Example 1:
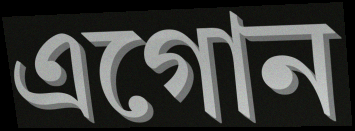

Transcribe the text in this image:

এগোন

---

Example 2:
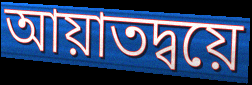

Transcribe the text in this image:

আয়াতদ্বয়ে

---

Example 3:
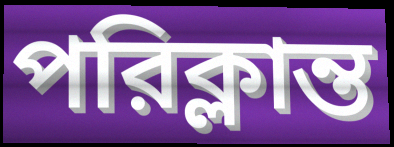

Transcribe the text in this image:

পরিক্লান্ত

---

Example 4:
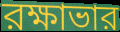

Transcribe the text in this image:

রক্ষাভার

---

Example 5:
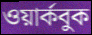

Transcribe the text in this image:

ওয়ার্কবুক